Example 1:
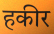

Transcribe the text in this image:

हकीर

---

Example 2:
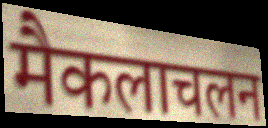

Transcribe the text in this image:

मैकलाचलन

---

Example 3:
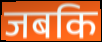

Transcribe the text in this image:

जबकि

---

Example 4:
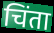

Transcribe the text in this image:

चिंता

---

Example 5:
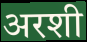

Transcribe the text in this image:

अरशी